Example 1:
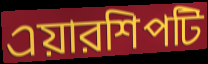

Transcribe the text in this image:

এয়ারশিপটি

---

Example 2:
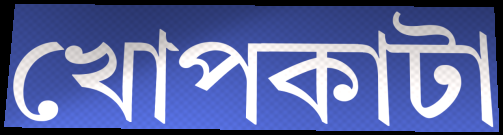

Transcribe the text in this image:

খোপকাটা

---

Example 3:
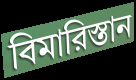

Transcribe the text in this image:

বিমারিস্তান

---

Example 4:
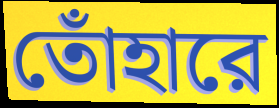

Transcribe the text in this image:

তোঁহারে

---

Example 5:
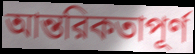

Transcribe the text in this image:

আন্তরিকতাপূর্ণ